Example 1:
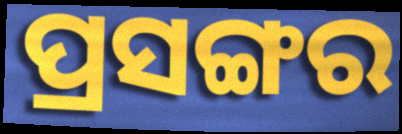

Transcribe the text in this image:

ପ୍ରସଙ୍ଗର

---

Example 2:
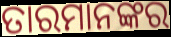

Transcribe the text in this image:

ତାରମାନଙ୍କର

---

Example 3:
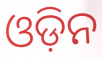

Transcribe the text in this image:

ଓଡ଼ିନ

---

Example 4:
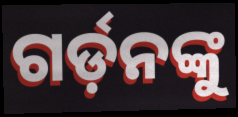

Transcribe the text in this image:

ଗର୍ଡ଼ନଙ୍କୁ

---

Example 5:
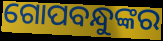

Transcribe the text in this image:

ଗୋପବନ୍ଧୁଙ୍କର